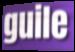
guile